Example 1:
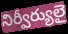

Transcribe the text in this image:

నిర్వీర్యులై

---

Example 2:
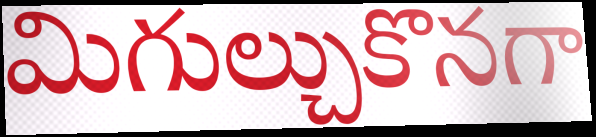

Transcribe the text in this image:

మిగుల్చుకొనగా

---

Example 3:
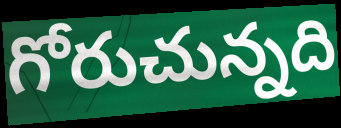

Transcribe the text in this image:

గోరుచున్నది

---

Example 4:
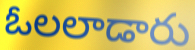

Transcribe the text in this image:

ఓలలాడారు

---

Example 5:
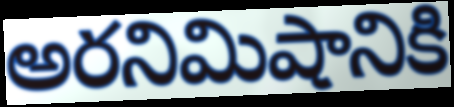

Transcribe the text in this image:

అరనిమిషానికి